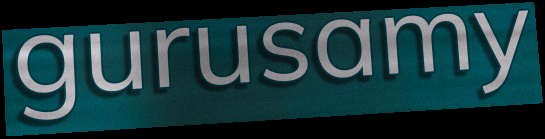
gurusamy